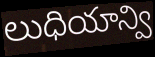
లుధియాన్వి